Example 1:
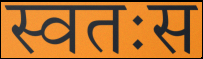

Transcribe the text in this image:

स्वतःस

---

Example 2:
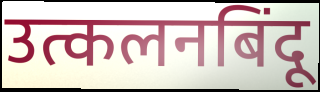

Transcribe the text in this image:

उत्कलनबिंदू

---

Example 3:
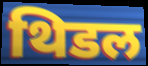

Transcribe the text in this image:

थिडल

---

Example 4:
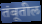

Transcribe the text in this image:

तंबूतील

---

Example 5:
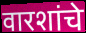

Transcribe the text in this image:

वारशांचे